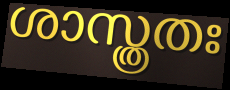
ശാസ്ത്രതഃ